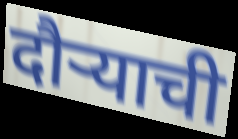
दौर्‍याची